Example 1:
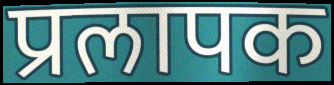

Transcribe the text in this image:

प्रलापक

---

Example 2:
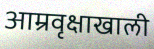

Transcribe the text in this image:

आम्रवृक्षाखाली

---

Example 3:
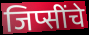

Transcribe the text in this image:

जिप्सींचे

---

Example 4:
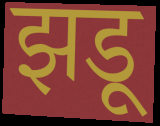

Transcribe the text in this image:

झडू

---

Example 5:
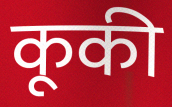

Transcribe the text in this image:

कूकी